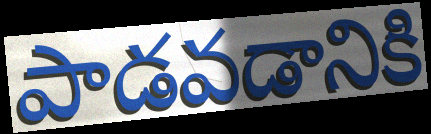
పాడవడానికి